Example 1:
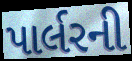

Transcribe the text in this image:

પાર્લરની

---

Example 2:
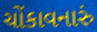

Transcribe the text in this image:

ચોંકાવનારું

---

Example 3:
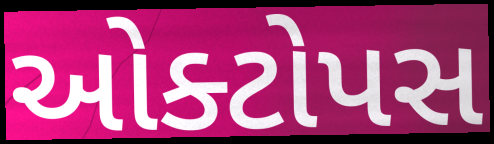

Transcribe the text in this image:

ઓક્ટોપસ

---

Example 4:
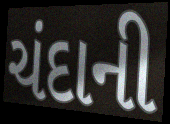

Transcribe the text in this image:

ચંદાની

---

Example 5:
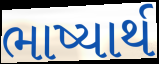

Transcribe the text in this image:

ભાષ્યાર્થ